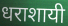
धराशायी